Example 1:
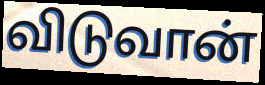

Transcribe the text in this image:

விடுவான்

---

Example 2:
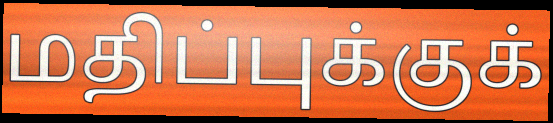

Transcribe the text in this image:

மதிப்புக்குக்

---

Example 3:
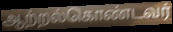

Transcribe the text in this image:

ஆற்றல்கொண்டவர்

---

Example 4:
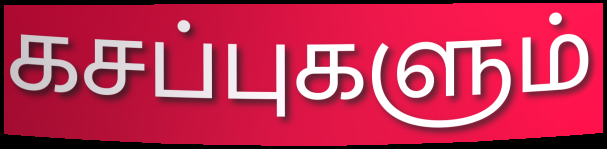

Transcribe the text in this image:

கசப்புகளும்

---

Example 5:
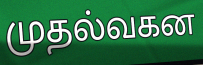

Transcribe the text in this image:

முதல்வகன